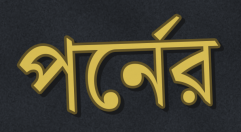
পর্নের